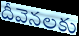
దీవెనలకు